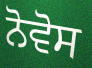
ਨੋਵੋਸ